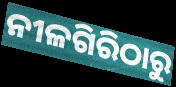
ନୀଳଗିରିଠାରୁ